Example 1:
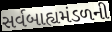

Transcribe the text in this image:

સર્વબાહ્યમંડળની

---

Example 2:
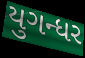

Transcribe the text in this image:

યુગન્ધર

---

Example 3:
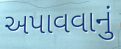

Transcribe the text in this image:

અપાવવાનું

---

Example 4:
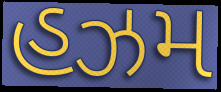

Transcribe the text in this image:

હઝમ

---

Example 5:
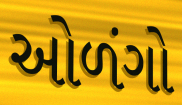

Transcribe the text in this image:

ઓળંગો